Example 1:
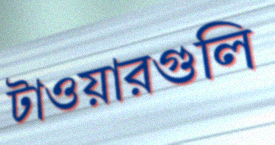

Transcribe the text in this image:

টাওয়ারগুলি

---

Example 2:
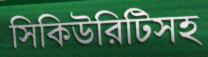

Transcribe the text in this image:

সিকিউরিটিসহ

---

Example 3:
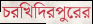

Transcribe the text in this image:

চরখিদিরপুরের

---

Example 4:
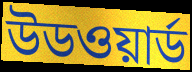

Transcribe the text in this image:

উডওয়ার্ড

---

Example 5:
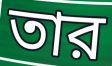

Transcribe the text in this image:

তার